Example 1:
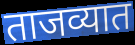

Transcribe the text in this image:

ताजव्यात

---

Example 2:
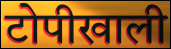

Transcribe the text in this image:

टोपीखाली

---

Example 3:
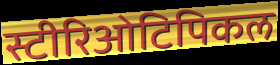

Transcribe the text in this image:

स्टीरिओटिपिकल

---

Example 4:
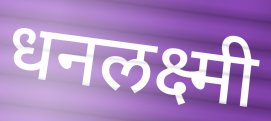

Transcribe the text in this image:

धनलक्ष्मी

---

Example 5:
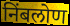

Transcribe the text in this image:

निंबलोण